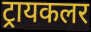
ट्रायकलर